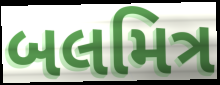
બલમિત્ર